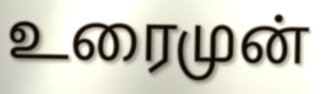
உரைமுன்